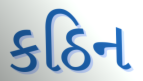
કઠિન